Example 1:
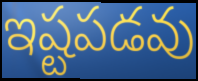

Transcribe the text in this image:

ఇష్టపడవు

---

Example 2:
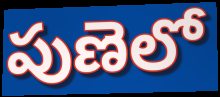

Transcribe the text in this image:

పుణెలో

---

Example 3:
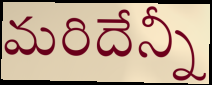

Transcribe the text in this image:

మరిదేన్నీ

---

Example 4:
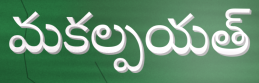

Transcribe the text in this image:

మకల్పయత్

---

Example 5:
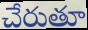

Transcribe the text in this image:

చేరుతూ